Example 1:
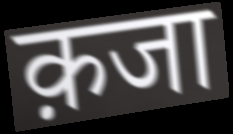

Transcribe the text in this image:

क़जा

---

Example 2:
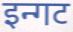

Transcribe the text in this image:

इन्गट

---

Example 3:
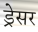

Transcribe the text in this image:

ड्रेसर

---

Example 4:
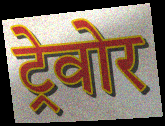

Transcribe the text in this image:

ट्रेवोर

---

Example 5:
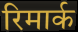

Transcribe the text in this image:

रिमार्क